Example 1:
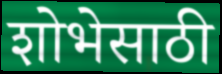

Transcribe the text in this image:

शोभेसाठी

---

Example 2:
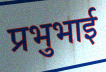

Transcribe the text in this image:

प्रभुभाई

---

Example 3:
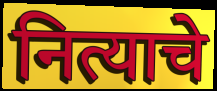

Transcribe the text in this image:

नित्याचे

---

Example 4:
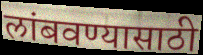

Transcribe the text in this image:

लांबवण्यासाठी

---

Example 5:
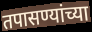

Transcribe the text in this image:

तपासण्यांच्या